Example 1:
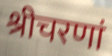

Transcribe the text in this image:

श्रीचरणां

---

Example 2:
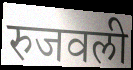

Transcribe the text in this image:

रुजवली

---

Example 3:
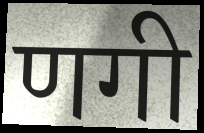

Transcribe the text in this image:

णगी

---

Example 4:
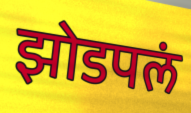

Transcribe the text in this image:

झोडपलं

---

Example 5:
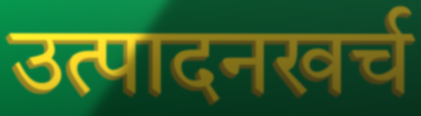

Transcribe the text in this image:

उत्पादनखर्च